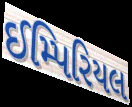
ઈમ્પિરિયલ